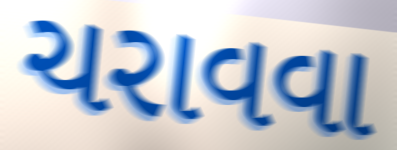
ચરાવવા